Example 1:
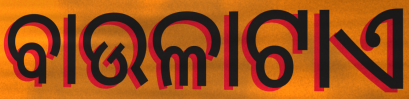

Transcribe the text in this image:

ବାଉଳାଟାଏ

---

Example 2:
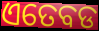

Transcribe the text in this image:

ଏତେବଡ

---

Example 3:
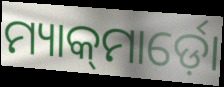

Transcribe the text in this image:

ମ୍ୟାକ୍‍ମାର୍ଡ଼ୋ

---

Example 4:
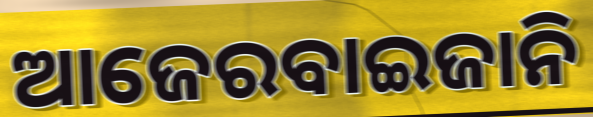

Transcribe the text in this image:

ଆଜେରବାଇଜାନି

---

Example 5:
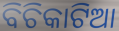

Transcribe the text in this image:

ବିଚିକାଟିଆ